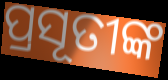
ପ୍ରସୂତୀଙ୍କ